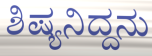
ಶಿಷ್ಯನಿದ್ದನು